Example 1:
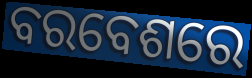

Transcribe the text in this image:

ବରବେଶରେ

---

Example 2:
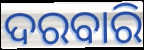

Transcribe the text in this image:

ଦରବାରି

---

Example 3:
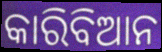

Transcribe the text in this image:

କାରିବିଆନ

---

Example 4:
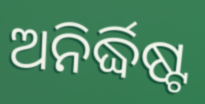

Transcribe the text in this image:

ଅନିର୍ଦ୍ଧିଷ୍ଟ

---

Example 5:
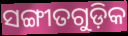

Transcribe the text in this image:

ସଙ୍ଗୀତଗୁଡ଼ିକ